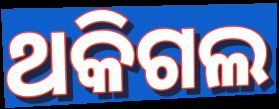
ଥକିଗଲ